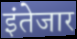
इंतेजार